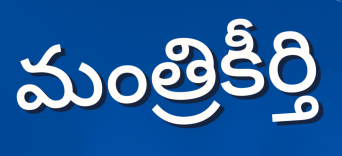
మంత్రికీర్తి